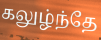
கலுழ்ந்தே